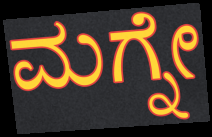
ಮಗ್ನೇ